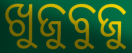
ଖୁଜୁବୁଜୁ